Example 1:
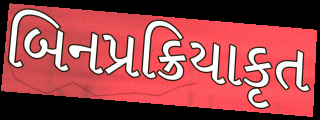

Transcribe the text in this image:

બિનપ્રક્રિયાકૃત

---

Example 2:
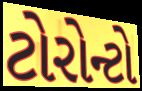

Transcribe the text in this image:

ટોરોન્ટો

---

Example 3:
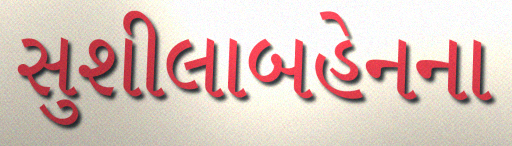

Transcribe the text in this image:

સુશીલાબહેનના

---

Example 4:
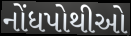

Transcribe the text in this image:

નોંધપોથીઓ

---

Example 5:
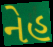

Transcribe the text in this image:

નેહ